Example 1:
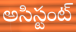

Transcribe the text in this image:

అసిస్టంట్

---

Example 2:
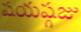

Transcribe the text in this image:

షయష్గజు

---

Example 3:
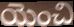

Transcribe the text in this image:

యెంచి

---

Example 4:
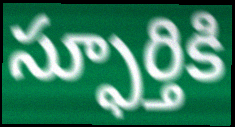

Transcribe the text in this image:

స్ఫూర్తికి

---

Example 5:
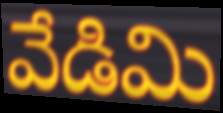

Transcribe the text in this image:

వేడిమి